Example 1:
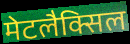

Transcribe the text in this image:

मेटलैक्सिल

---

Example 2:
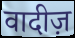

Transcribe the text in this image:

वादीज़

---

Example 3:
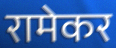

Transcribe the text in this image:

रामेकर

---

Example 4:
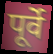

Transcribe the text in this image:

पूर्वे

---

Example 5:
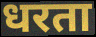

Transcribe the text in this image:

धरता